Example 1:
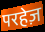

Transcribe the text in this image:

परहेज़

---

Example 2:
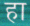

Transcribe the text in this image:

हा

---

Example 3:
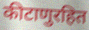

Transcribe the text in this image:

कीटाणुरहित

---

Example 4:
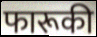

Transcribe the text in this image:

फारूकी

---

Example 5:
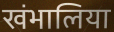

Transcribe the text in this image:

खंभालिया